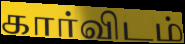
கார்விடம்